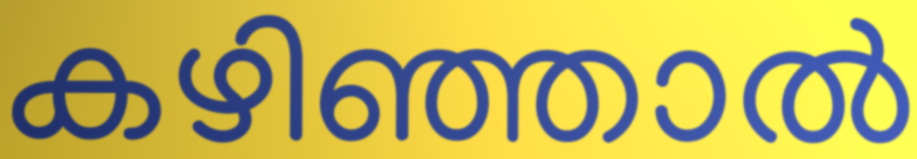
കഴിഞ്ഞാൽ